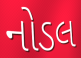
નોડલ